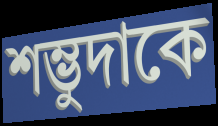
শম্ভুদাকে